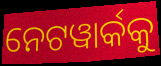
ନେଟୱାର୍କକୁ